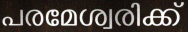
പരമേശ്വരിക്ക്